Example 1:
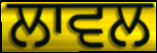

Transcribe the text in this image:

ਲਾਵਲ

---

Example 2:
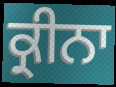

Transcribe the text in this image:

ਕ੍ਰੀਨਾ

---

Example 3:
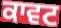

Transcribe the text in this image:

ਕਾਵਟ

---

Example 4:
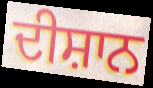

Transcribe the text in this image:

ਦੀਸ਼ਾਨ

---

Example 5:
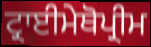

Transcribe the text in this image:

ਟ੍ਰਾਈਮੇਥੋਪ੍ਰੀਮ